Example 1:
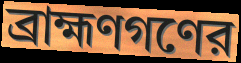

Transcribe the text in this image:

ব্রাহ্মণগণের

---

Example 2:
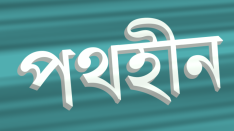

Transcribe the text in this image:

পথহীন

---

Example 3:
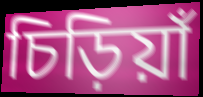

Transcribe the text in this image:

চিড়িয়াঁ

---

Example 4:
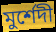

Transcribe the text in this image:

মুর্শেদী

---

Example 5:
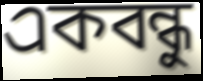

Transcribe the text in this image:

একবন্ধু